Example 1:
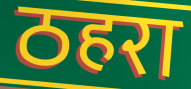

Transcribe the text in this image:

ठहरा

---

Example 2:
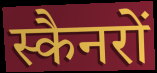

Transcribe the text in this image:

स्कैनरों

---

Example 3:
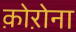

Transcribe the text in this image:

क़ोऱोना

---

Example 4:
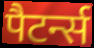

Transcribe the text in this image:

पैटर्न्स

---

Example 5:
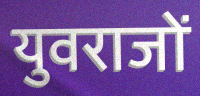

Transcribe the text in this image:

युवराजों